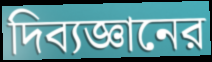
দিব্যজ্ঞানের